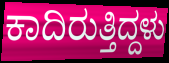
ಕಾದಿರುತ್ತಿದ್ದಳು